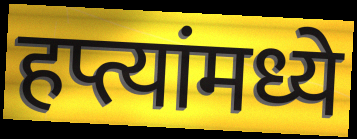
हप्त्यांमध्ये